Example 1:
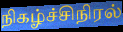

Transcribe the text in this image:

நிகழ்ச்சிநிரல்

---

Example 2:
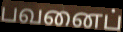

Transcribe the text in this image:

பவனைப்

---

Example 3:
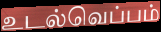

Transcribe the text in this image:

உடல்வெப்பம்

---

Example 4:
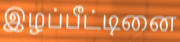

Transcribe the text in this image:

இழப்பீட்டினை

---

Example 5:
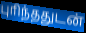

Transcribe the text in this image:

புரிந்ததுடன்